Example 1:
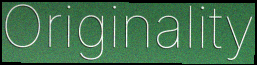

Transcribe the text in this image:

Originality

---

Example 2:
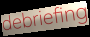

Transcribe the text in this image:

debriefing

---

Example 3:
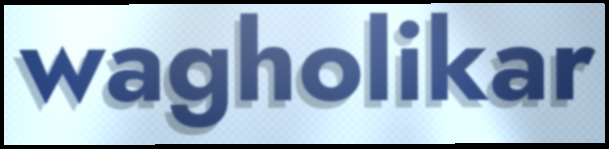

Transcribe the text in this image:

wagholikar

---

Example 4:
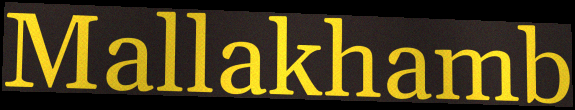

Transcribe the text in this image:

Mallakhamb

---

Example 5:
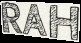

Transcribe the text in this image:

RAH